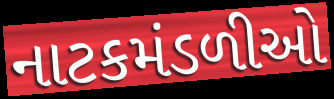
નાટકમંડળીઓ